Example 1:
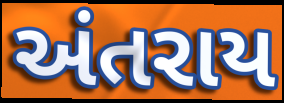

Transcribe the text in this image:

અંતરાય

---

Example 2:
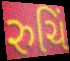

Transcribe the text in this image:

રુચિં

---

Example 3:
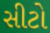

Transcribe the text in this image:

સીટો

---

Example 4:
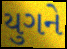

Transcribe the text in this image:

યુગને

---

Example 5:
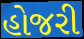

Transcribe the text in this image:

હોજરી